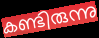
കണ്ടിരുന്നു